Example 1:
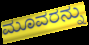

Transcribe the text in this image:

ಮೂವರನ್ನು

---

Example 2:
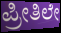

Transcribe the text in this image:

ಪ್ರೀತಿಲೇ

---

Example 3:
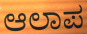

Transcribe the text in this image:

ಆಲಾಪ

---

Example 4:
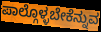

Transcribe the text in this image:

ಪಾಲ್ಗೊಳ್ಳಬೇಕೆನ್ನುವ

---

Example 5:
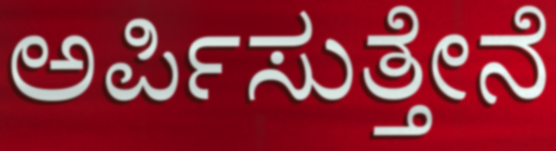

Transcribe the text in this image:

ಅರ್ಪಿಸುತ್ತೇನೆ